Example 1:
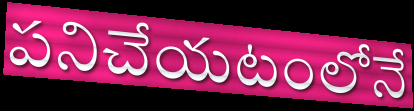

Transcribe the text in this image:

పనిచేయటంలోనే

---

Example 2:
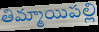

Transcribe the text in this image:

తిమ్మాయిపల్లి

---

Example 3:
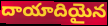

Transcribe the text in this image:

దాయాదియైన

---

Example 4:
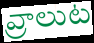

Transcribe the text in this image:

వ్రాలుట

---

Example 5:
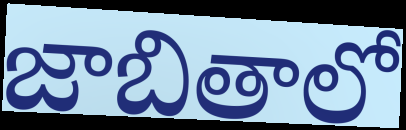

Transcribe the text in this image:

జాబితాలో